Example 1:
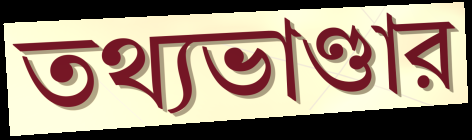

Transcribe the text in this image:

তথ্যভাণ্ডার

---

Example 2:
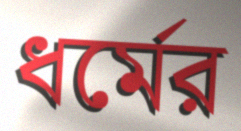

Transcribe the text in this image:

ধর্মের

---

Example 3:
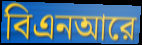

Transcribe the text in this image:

বিএনআরে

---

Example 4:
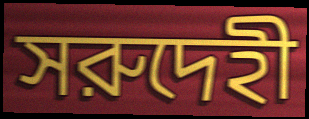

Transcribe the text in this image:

সরুদেহী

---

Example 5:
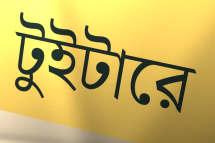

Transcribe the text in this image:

টুইটারে